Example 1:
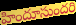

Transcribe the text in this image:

హిందూసుందరి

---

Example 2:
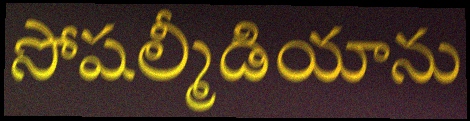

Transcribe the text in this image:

సోషల్మీడియాను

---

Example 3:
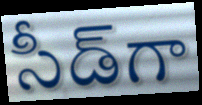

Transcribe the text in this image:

సీడ్‌గా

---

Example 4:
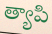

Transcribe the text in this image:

త్యాపి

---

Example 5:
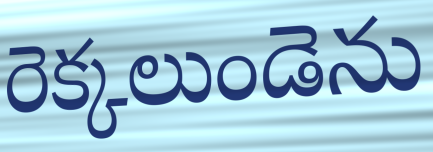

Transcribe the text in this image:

రెక్కలుండెను